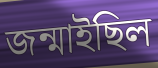
জন্মাইছিল